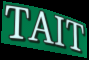
TAIT